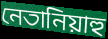
নেতানিয়াহু